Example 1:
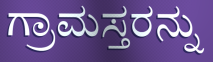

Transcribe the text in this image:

ಗ್ರಾಮಸ್ತರನ್ನು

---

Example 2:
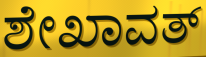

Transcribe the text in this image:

ಶೇಖಾವತ್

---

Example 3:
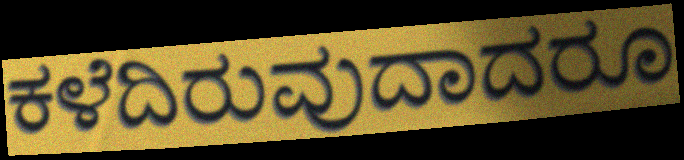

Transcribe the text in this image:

ಕಳೆದಿರುವುದಾದರೂ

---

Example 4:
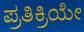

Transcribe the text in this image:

ಪ್ರತಿಕ್ರಿಯೇ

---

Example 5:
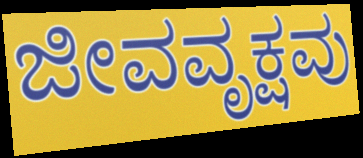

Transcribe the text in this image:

ಜೀವವೃಕ್ಷವು